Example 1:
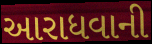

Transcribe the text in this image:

આરાધવાની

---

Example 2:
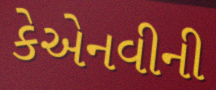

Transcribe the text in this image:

કેએનવીની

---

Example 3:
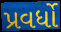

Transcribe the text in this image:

પ્રવર્ધો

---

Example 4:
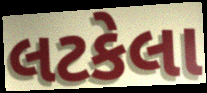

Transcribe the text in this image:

લટકેલા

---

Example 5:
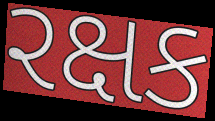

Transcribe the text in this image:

રક્ષક